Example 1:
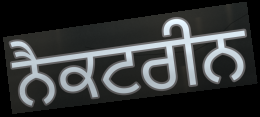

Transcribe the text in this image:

ਨੈਕਟਰੀਨ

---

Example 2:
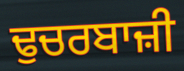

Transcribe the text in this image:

ਢੁਚਰਬਾਜ਼ੀ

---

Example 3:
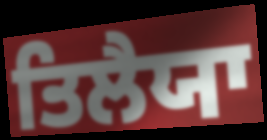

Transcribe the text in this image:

ਤਿਲੈਯਾ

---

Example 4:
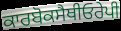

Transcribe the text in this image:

ਕਾਰਬੋਕਸੈਥੀਓਰੇਪੀ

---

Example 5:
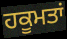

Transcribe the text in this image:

ਹਕੂਮਤਾਂ